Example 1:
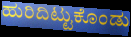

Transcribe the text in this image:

ಹುರಿದಿಟ್ಟುಕೊಂಡು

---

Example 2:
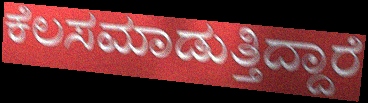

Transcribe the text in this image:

ಕೆಲಸಮಾಡುತ್ತಿದ್ದಾರೆ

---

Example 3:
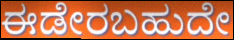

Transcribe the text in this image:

ಈಡೇರಬಹುದೇ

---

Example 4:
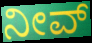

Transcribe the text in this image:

ನೀವ್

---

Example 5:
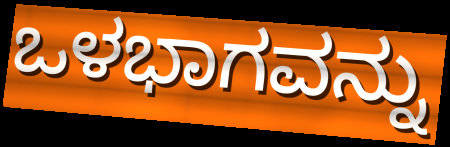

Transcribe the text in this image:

ಒಳಭಾಗವನ್ನು